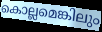
കൊല്ലമെങ്കിലും